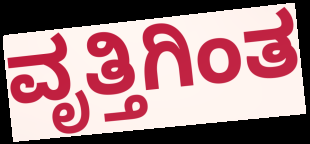
ವೃತ್ತಿಗಿಂತ